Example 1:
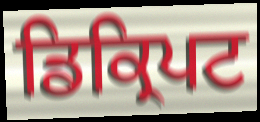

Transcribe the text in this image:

ਡਿਕ੍ਰਿਪਟ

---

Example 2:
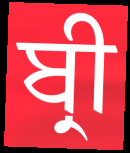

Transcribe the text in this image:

ਬ੍ਰੀ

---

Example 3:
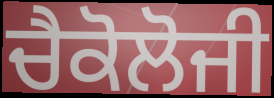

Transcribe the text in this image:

ਚੈਕੋਲੋਜੀ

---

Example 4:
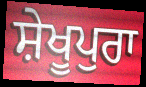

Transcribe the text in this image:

ਸ਼ੇਖੂਪੁਰਾ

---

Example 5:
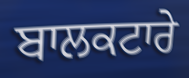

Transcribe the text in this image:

ਬਾਲਕਟਾਰੇ